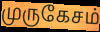
முருகேசம்